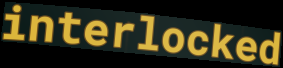
interlocked